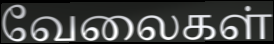
வேலைகள்